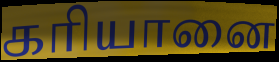
கரியானை